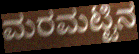
ಮರಮಟ್ಟಿನ